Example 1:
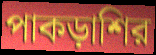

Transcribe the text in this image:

পাকড়াশির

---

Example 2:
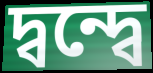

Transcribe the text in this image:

দ্বন্দ্বে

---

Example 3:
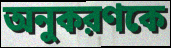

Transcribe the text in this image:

অনুকরণকে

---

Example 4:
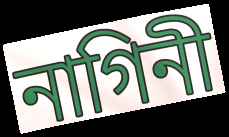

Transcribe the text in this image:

নাগিনী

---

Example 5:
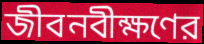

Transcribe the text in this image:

জীবনবীক্ষণের